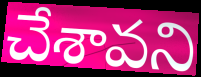
చేశావని